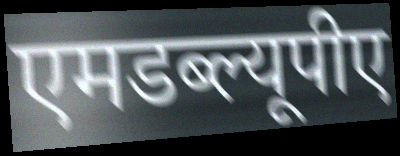
एमडब्ल्यूपीए